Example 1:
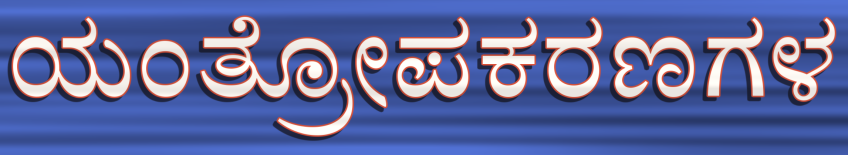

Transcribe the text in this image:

ಯಂತ್ರೋಪಕರಣಗಳ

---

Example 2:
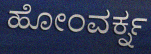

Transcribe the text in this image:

ಹೋಂವರ್ಕ್ನ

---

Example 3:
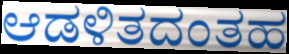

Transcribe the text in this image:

ಆಡಳಿತದಂತಹ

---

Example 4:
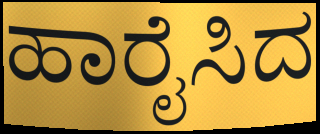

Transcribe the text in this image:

ಹಾರೈಸಿದ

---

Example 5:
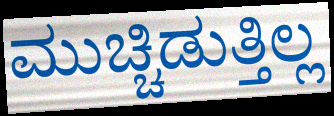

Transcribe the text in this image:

ಮುಚ್ಚಿಡುತ್ತಿಲ್ಲ